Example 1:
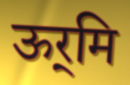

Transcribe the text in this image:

ऊर्मि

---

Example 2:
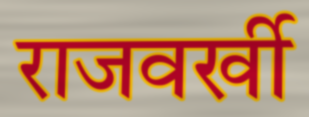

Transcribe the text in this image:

राजवर्खी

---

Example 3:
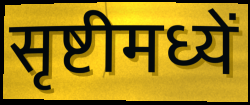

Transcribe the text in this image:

सृष्टीमध्यें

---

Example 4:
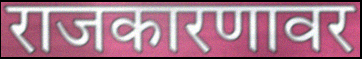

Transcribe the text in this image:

राजकारणावर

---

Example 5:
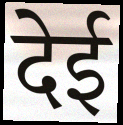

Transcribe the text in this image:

देई